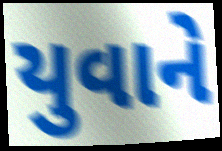
યુવાને